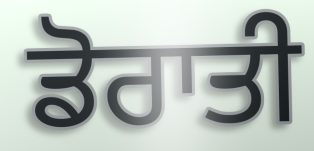
ਡੋਰਾਤੀ